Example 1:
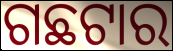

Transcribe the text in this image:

ଗଛଟାର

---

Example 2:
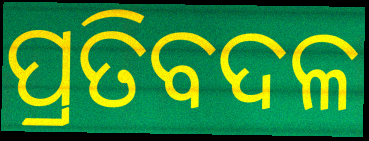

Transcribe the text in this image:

ପ୍ରତିବଦଳ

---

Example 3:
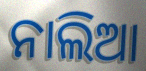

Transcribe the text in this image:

ନାଲିଆ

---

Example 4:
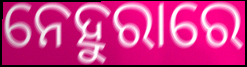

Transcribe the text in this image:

ନେହୁରାରେ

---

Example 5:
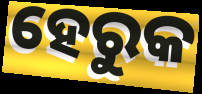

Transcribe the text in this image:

ହେରୁକ